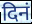
दिनं